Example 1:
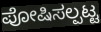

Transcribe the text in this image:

ಪೋಷಿಸಲ್ಪಟ್ಟ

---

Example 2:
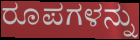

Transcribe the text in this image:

ರೂಪಗಳನ್ನು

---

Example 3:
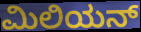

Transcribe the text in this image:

ಮಿಲಿಯನ್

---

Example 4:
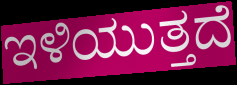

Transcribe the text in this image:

ಇಳಿಯುತ್ತದೆ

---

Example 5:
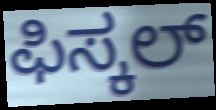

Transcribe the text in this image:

ಫಿಸ್ಕಲ್